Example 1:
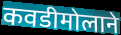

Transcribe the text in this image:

कवडीमोलाने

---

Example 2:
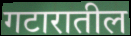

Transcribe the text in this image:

गटारातील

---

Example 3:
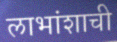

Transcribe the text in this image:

लाभांशाची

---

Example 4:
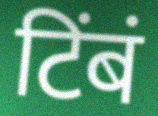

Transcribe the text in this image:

टिंबं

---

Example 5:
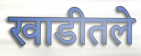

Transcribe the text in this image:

खाडीतले